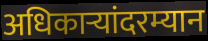
अधिकाऱ्यांदरम्यान